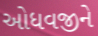
ઓધવજીને